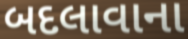
બદલાવાના